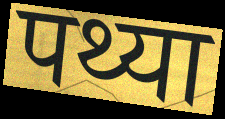
पथ्या